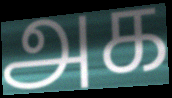
அக